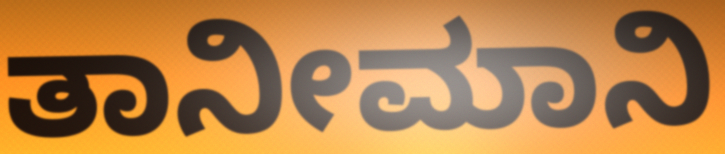
ತಾನೀಮಾನಿ